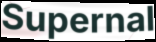
Supernal